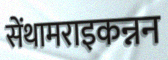
सेंथामराइकन्नन